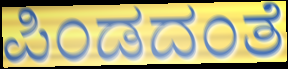
ಪಿಂಡದಂತೆ